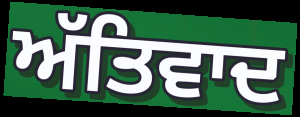
ਅੱਤਿਵਾਦ